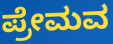
ಪ್ರೇಮವ